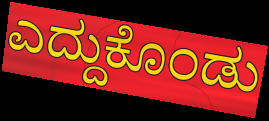
ಎದ್ದುಕೊಂಡು